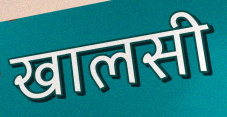
खालसी